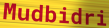
Mudbidri